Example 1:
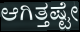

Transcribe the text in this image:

ಆಗಿತ್ತಷ್ಟೇ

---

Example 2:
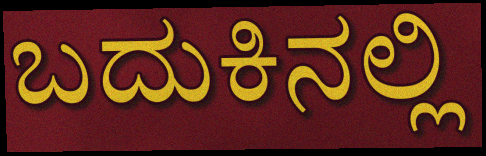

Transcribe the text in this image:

ಬದುಕಿನಲ್ಲಿ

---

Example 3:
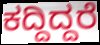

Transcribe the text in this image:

ಕದ್ದಿದ್ದರೆ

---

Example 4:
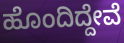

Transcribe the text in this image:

ಹೊಂದಿದ್ದೇವೆ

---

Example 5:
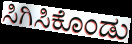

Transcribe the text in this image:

ಸಿಗಿಸಿಕೊಂಡು